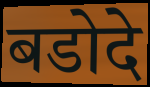
बडोदे